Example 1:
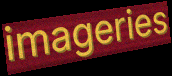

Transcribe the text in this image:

imageries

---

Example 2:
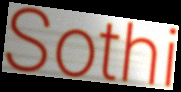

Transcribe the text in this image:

Sothi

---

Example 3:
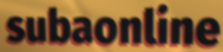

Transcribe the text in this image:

subaonline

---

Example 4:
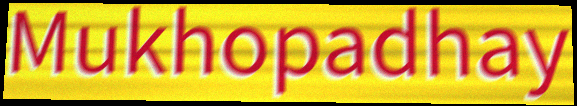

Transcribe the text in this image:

Mukhopadhay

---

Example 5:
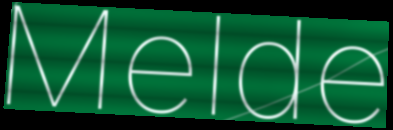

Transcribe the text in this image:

Melde